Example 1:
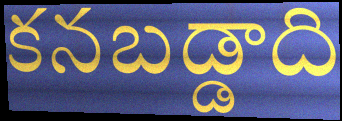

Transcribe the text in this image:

కనబడ్డాది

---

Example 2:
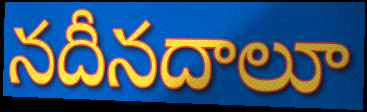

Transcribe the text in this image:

నదీనదాలూ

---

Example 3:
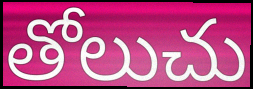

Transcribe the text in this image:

తోలుచు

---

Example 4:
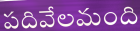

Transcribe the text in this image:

పదివేలమంది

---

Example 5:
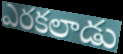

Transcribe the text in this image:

ఎరకలాడు